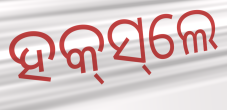
ହକ୍‌ସ୍‌ଲେ